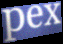
pex